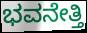
ಭವನೇತ್ತಿ